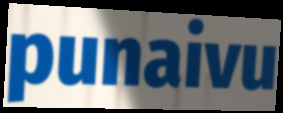
punaivu